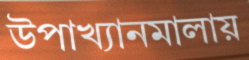
উপাখ্যানমালায়